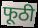
फूठी